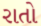
રાતો